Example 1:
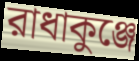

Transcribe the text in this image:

রাধাকুঞ্জে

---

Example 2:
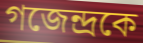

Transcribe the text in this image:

গজেন্দ্রকে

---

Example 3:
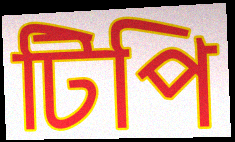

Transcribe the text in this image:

টিপি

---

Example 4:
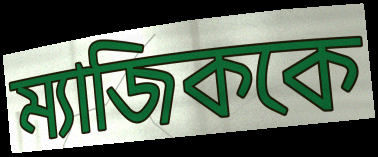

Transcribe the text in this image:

ম্যাজিককে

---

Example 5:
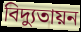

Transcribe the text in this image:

বিদ্যুতায়ন